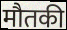
मौतकी